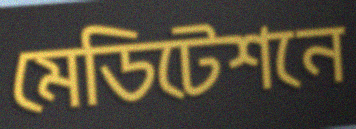
মেডিটেশনে